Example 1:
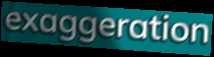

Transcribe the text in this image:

exaggeration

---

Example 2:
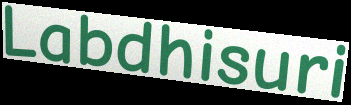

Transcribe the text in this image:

Labdhisuri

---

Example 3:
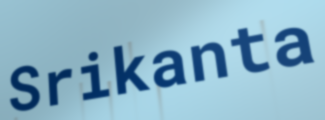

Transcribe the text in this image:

Srikanta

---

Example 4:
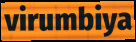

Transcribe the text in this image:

virumbiya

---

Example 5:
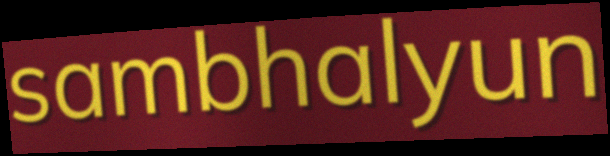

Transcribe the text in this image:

sambhalyun